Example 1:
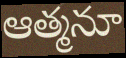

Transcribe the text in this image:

ఆత్మనూ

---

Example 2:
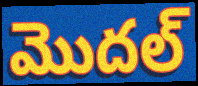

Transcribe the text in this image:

మొదల్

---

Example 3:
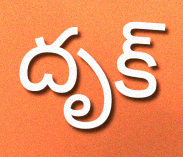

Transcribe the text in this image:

దృక్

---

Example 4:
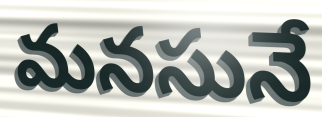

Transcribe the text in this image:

మనసునే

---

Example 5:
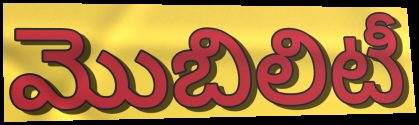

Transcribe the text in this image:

మొబిలిటీ